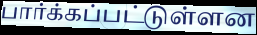
பார்க்கப்பட்டுள்ளன